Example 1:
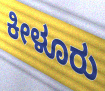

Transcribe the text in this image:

ಕೀಳೂರು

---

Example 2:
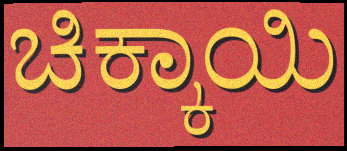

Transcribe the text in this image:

ಚಿಕ್ಕಾಯಿ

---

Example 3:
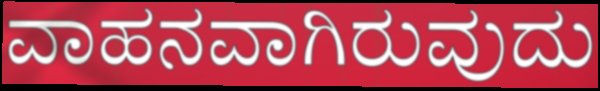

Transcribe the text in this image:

ವಾಹನವಾಗಿರುವುದು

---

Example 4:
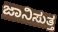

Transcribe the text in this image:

ಜಾನಿಸುತ್ತ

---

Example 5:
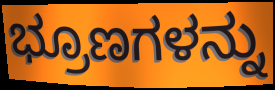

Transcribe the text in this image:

ಭ್ರೂಣಗಳನ್ನು